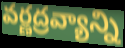
వర్ణద్రవ్యాన్ని